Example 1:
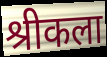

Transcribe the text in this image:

श्रीकला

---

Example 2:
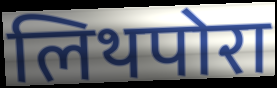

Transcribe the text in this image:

लिथपोरा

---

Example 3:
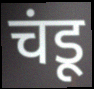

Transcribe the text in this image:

चंडू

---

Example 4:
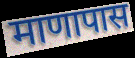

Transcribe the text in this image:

माणापास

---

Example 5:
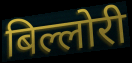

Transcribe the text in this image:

बिल्लोरी